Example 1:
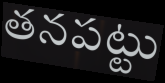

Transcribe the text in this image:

తనపట్టు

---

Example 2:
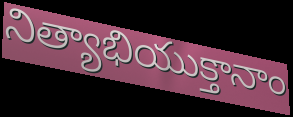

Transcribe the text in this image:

నిత్యాభియుక్తానాం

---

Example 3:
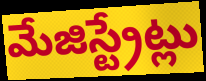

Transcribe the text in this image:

మేజిస్ట్రేట్లు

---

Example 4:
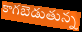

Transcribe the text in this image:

కాగబెడుతున్న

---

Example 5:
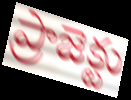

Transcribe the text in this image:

ప్రాజెక్టు